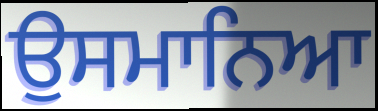
ਉਸਮਾਨਿਆ